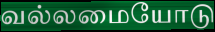
வல்லமையோடு